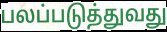
பலப்படுத்துவது